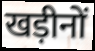
खड़ीनों